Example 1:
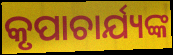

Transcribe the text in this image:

କୃପାଚାର୍ଯ୍ୟଙ୍କ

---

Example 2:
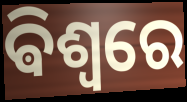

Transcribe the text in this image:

ଵିଶ୍ୱରେ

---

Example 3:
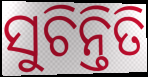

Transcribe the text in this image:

ସୁଚିନ୍ତିତି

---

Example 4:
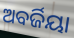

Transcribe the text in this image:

ଅବର୍ଜିୟା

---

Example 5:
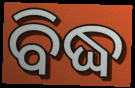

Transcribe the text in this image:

ବିଦ୍ଧ